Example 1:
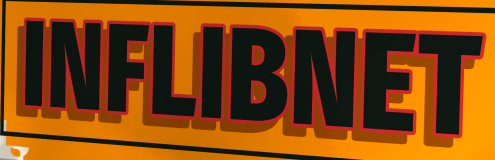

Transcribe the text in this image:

INFLIBNET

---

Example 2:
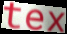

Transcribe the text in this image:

tex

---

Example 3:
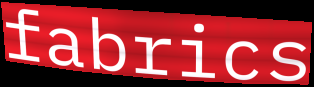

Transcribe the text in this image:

fabrics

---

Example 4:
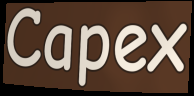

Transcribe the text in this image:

Capex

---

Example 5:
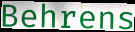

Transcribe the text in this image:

Behrens